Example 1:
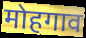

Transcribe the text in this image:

मोहगाव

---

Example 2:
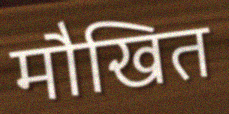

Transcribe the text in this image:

मौखित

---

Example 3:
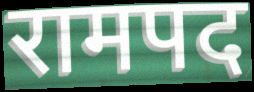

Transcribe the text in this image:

रामपद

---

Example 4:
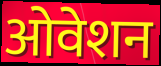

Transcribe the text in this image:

ओवेशन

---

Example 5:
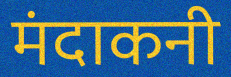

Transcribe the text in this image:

मंदाकनी